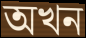
অখন